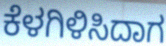
ಕೆಳಗಿಳಿಸಿದಾಗ